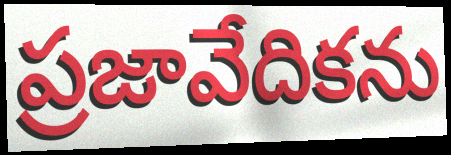
ప్రజావేదికను